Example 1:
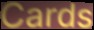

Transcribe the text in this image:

Cards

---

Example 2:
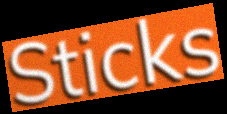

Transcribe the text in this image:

Sticks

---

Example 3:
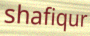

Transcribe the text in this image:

shafiqur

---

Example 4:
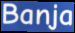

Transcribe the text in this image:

Banja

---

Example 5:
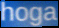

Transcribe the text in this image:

hoga